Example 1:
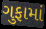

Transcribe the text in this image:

ગુફામાં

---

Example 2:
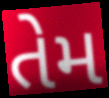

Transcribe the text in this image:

તેમ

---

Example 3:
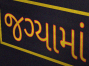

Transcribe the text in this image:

જગ્યામાં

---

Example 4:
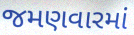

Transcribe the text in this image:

જમણવારમાં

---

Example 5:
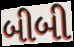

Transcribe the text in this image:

બીબી